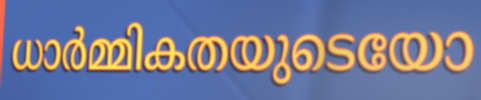
ധാർമ്മികതയുടെയോ